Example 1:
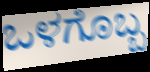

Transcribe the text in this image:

ಒಳಗೊಬ್ಬ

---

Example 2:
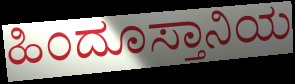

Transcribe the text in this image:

ಹಿಂದೂಸ್ತಾನಿಯ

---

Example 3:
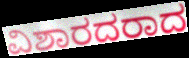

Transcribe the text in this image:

ವಿಶಾರದರಾದ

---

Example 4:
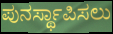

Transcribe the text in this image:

ಪುನರ್ಸ್ಥಾಪಿಸಲು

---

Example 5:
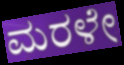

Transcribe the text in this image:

ಮರಳೇ